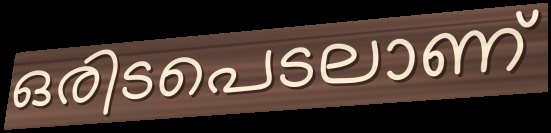
ഒരിടപെടലാണ്